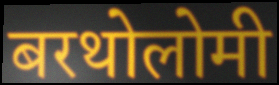
बरथोलोमी